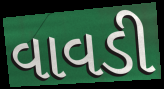
વાવડી